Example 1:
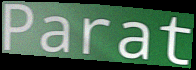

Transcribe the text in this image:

Parat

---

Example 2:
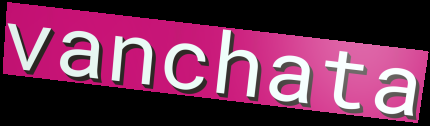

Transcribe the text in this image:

vanchata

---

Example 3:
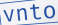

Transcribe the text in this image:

vnto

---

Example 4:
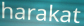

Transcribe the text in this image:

harakat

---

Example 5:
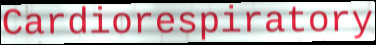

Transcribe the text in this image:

Cardiorespiratory